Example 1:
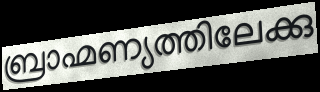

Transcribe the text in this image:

ബ്രാഹ്മണ്യത്തിലേക്കു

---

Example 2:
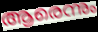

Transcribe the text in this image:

ആരെന്നും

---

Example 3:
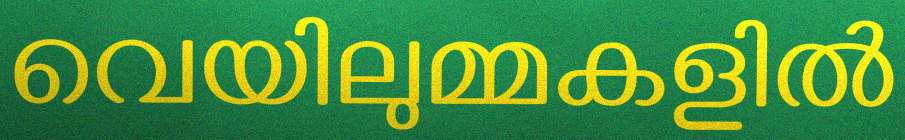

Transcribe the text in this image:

വെയിലുമ്മകളിൽ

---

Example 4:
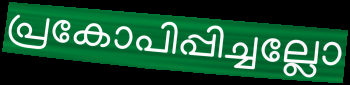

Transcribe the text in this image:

പ്രകോപിപ്പിച്ചല്ലോ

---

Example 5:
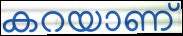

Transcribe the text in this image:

കറയാണ്